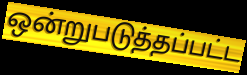
ஒன்றுபடுத்தப்பட்ட